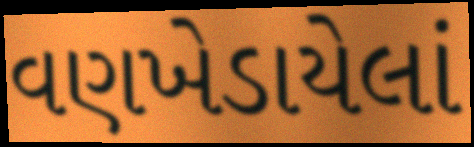
વણખેડાયેલાં